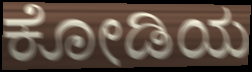
ಕೋಡಿಯ